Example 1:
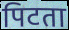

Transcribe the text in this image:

पिटता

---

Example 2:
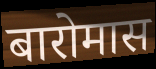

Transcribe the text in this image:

बारोमास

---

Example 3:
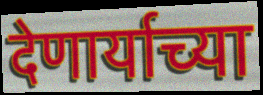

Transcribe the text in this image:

देणार्याच्या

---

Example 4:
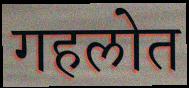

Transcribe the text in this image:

गहलोत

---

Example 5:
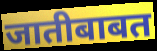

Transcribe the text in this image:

जातीबाबत